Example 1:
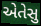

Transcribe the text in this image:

એતેસુ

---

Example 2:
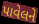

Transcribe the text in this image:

પાવેલને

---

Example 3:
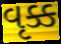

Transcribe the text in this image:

વૃક્ક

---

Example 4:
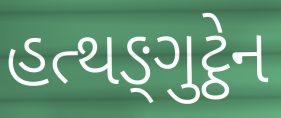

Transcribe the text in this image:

હત્થઙ્ગુટ્ઠેન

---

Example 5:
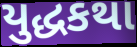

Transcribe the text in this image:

યુદ્ધકથા